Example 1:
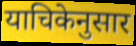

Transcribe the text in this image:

याचिकेनुसार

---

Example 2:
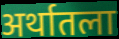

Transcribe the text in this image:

अर्थातला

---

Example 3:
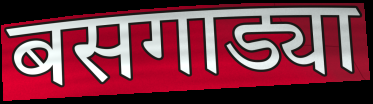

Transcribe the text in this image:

बसगाड्या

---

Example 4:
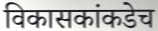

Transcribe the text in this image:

विकासकांकडेच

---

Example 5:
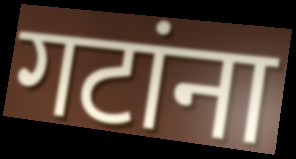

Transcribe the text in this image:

गटांना